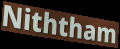
Niththam